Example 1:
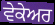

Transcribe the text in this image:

ਵੇਕੇਅਰ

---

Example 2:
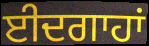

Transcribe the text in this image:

ਈਦਗਾਹਾਂ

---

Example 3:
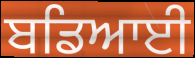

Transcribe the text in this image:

ਬਡਿਆਈ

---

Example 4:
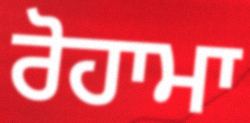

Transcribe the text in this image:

ਰੋਹਾਮਾ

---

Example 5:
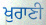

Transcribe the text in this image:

ਖੁਰਾਣੀ